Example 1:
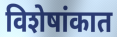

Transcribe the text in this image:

विशेषांकात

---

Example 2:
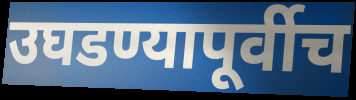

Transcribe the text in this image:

उघडण्यापूर्वीच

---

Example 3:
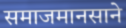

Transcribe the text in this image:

समाजमानसाने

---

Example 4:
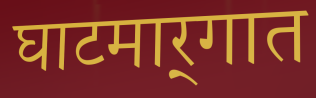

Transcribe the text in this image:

घाटमार्गात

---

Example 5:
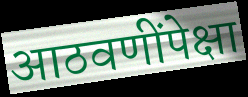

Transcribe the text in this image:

आठवणींपेक्षा